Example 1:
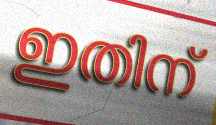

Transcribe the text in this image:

ഇതിന്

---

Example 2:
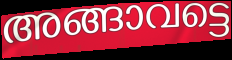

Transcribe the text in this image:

അങ്ങാവട്ടെ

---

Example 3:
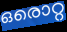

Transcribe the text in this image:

ഒരൊറ്റ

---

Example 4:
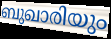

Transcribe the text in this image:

ബുഖാരിയും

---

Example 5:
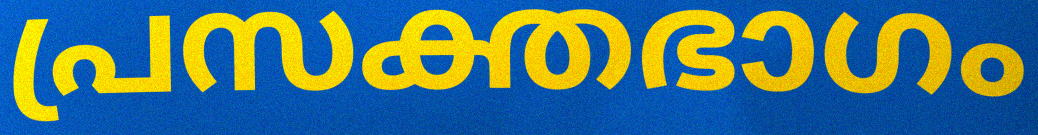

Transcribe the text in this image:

പ്രസക്തഭാഗം